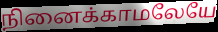
நினைக்காமலேயே